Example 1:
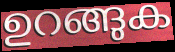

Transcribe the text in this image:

ഉറങ്ങുക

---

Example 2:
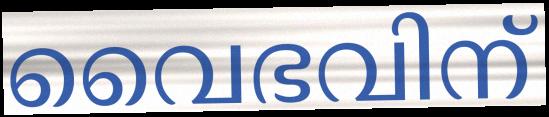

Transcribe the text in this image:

വൈഭവിന്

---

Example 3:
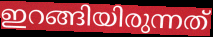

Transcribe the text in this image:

ഇറങ്ങിയിരുന്നത്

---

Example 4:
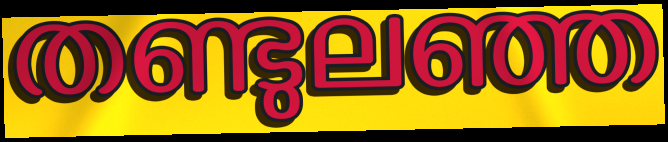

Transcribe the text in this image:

തണ്ടുലഞ്ഞ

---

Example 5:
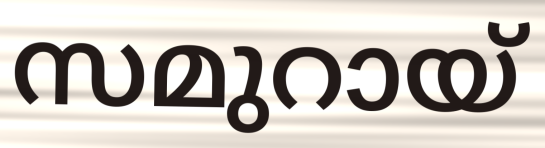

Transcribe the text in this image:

സമുറായ്